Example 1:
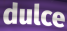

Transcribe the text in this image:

dulce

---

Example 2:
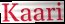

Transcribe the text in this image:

Kaari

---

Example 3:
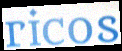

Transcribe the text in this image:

ricos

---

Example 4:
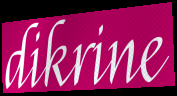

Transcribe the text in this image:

dikrine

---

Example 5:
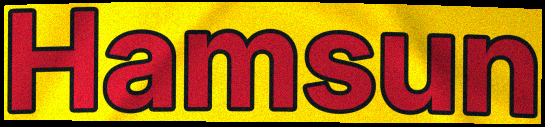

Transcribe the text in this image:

Hamsun